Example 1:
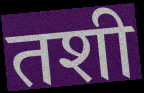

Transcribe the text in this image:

तशी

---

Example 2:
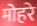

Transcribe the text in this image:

मोहरे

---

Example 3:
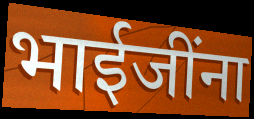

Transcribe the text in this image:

भाईजींना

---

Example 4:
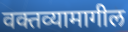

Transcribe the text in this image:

वक्तव्यामागील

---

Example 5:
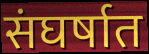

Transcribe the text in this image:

संघर्षात